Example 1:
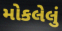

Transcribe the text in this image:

મોકલેલું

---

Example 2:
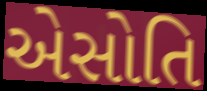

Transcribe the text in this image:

એસોતિ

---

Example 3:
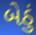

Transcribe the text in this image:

બેઠું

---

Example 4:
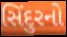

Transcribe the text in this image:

સિંદુરનો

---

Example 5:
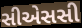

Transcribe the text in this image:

સીએસસી